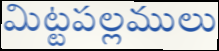
మిట్టపల్లములు